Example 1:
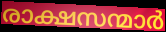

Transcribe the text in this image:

രാക്ഷസന്മാർ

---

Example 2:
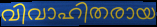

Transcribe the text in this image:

വിവാഹിതരായ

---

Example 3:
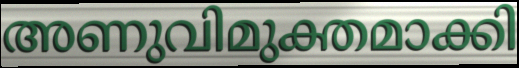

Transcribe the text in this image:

അണുവിമുക്തമാക്കി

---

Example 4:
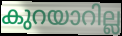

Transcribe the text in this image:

കുറയാറില്ല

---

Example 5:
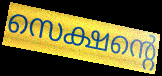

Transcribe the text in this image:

സെക്ഷന്റെ